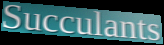
Succulants